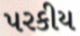
પરકીય